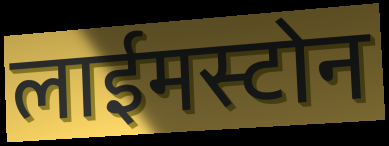
लाईमस्टोन